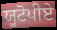
ਯੂਟੋਪੀਏ